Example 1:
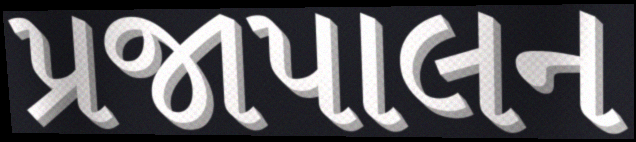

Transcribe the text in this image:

પ્રજાપાલન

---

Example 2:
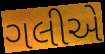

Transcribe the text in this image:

ગલીએ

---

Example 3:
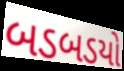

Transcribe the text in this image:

બડબડયો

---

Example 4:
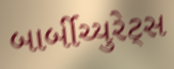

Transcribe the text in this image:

બાર્બીચ્યુરેટ્સ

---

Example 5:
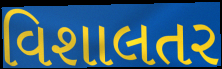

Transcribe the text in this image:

વિશાલતર